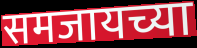
समजायच्या